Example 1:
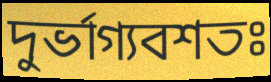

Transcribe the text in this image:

দুৰ্ভাগ্যবশতঃ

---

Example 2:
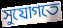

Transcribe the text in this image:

সুযোগতে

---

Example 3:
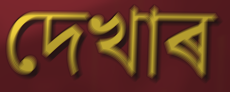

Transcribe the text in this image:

দেখাৰ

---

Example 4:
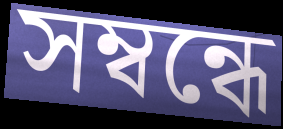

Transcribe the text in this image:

সম্বন্ধে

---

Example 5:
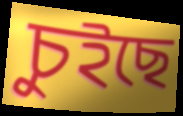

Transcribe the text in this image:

চুইছে